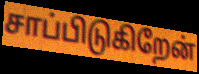
சாப்பிடுகிறேன்